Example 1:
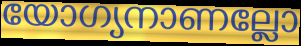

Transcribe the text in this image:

യോഗ്യനാണല്ലോ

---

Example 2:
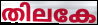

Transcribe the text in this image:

തിലകേ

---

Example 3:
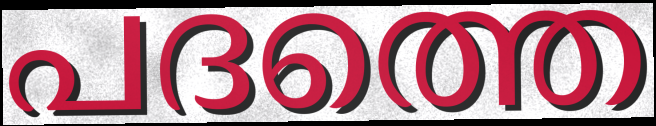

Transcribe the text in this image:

പദത്തെ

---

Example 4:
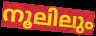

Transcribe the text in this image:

നൂലിലും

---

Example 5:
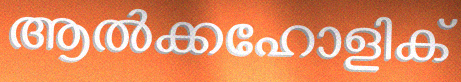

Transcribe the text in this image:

ആൽക്കഹോളിക്